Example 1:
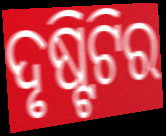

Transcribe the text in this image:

ଦୃଷ୍ଟିଟିର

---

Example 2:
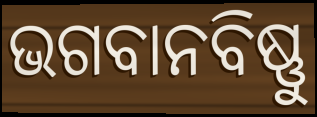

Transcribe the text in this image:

ଭଗବାନବିଷ୍ଣୁ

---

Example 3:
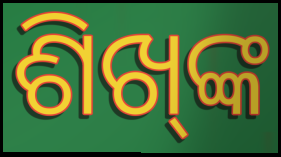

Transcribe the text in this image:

ଶିଖ୍‍ଙ୍କ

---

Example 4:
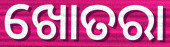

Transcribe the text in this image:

ଖୋତରା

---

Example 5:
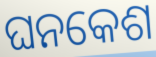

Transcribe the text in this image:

ଘନକେଶ